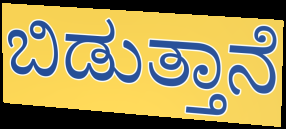
ಬಿಡುತ್ತಾನೆ